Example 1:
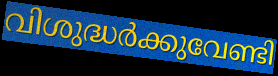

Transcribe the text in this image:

വിശുദ്ധർക്കുവേണ്ടി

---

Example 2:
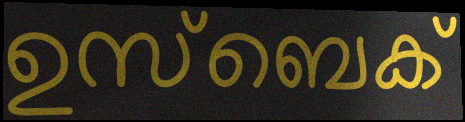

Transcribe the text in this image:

ഉസ്ബെക്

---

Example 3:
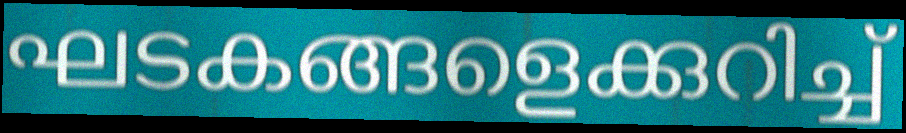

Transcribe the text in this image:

ഘടകങ്ങളെക്കുറിച്ച്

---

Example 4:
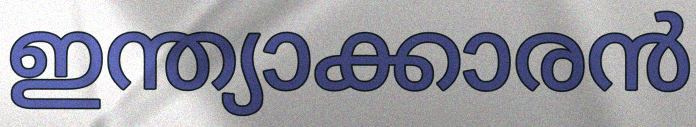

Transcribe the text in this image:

ഇന്ത്യാക്കാരൻ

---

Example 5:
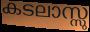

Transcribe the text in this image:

കടലാസ്സു